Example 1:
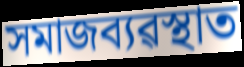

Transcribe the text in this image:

সমাজব্যৱস্থাত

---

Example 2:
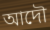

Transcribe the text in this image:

আদৌ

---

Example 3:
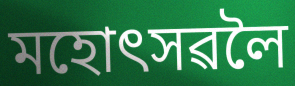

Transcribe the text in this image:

মহোৎসৱলৈ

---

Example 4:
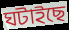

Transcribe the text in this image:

ঘটাইছে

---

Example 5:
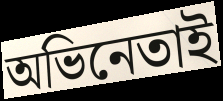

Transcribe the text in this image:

অভিনেতাই